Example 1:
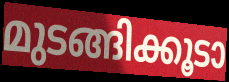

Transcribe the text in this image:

മുടങ്ങിക്കൂടാ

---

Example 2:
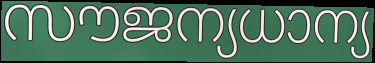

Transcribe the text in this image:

സൗജന്യധാന്യ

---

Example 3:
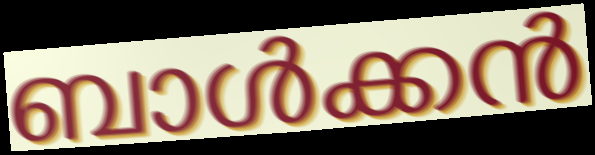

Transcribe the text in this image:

ബാൾക്കൻ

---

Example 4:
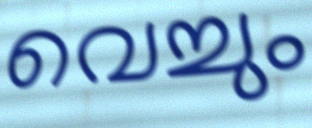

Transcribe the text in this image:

വെച്ചും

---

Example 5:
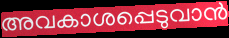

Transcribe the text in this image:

അവകാശപ്പെടുവാൻ